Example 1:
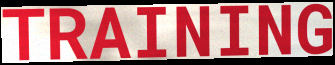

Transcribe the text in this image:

TRAINING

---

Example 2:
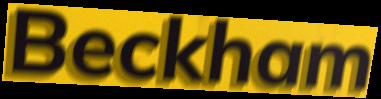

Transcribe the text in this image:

Beckham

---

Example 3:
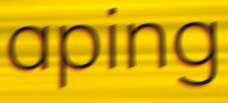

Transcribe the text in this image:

aping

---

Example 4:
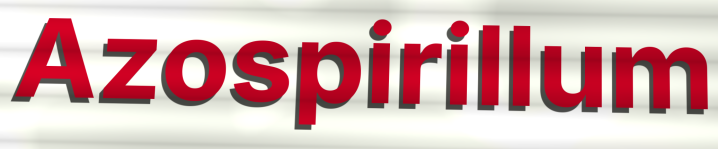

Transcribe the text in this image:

Azospirillum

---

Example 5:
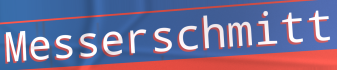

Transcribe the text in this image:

Messerschmitt